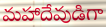
మహాదేవుడిగా